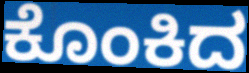
ಕೊಂಕಿದ